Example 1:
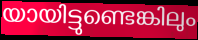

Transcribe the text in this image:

യായിട്ടുണ്ടെങ്കിലും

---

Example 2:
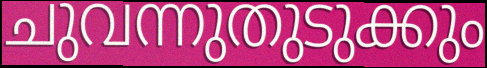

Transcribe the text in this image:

ചുവന്നുതുടുക്കും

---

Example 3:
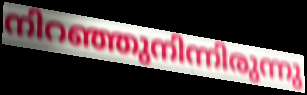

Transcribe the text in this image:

നിറഞ്ഞുനിന്നിരുന്നു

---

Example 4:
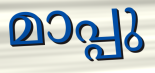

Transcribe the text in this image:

മാപ്പു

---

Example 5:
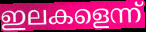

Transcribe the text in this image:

ഇലകളെന്ന്